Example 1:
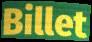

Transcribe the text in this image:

Billet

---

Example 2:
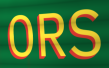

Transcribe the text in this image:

ORS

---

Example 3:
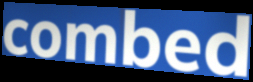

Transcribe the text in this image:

combed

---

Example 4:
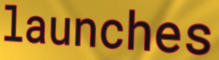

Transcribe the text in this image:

launches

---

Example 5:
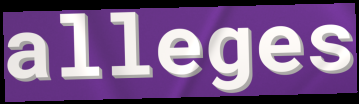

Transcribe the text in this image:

alleges